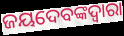
ଜୟଦେବଙ୍କଦ୍ୱାରା